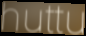
huttu